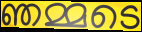
ഞമ്മടെ